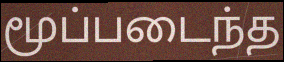
மூப்படைந்த